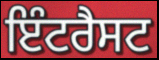
ਇੰਟਰੈਸਟ